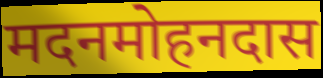
मदनमोहनदास